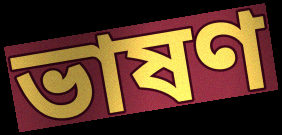
ভাষণ